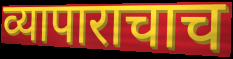
व्यापाराचाच